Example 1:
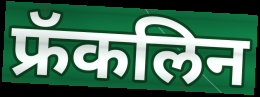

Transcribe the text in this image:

फ्रॅकलिन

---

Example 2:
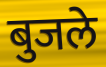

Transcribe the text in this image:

बुजले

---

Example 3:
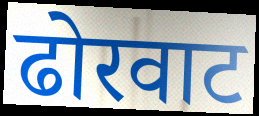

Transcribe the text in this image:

ढोरवाट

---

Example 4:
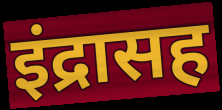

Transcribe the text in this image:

इंद्रासह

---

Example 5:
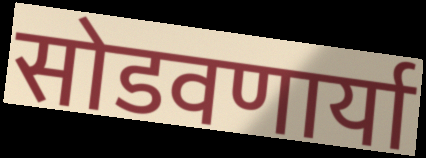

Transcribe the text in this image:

सोडवणार्या